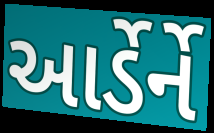
આર્ડેર્ને